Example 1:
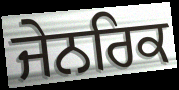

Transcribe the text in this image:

ਜੇਨਰਿਕ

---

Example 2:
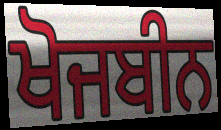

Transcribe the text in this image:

ਖੋਜਬੀਨ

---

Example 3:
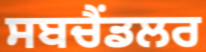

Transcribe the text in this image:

ਸਬਚੈਂਡਲਰ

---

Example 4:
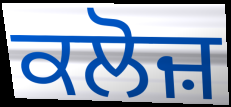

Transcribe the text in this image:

ਕਲੋਜ਼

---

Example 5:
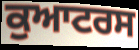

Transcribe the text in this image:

ਕੁਆਟਰਸ